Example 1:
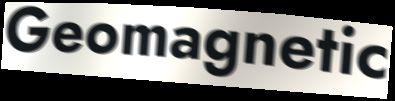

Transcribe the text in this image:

Geomagnetic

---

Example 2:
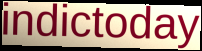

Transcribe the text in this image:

indictoday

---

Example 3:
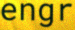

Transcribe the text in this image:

engr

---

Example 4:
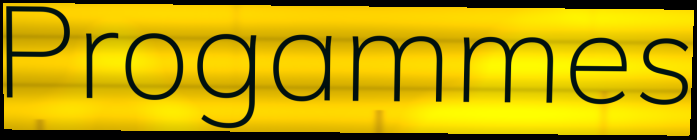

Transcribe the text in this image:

Progammes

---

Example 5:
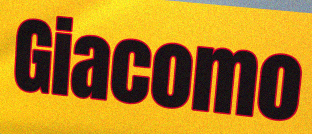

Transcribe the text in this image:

Giacomo